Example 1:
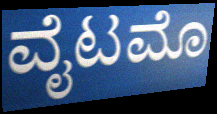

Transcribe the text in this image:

ವೈಟಮೊ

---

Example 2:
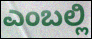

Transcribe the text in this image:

ಎಂಬಲ್ಲಿ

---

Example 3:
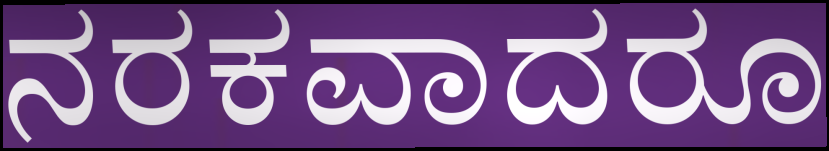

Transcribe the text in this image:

ನರಕವಾದರೂ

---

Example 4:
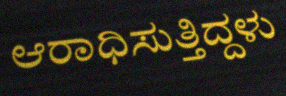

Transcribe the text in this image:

ಆರಾಧಿಸುತ್ತಿದ್ದಳು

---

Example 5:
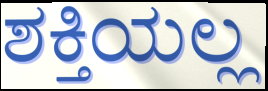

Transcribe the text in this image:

ಶಕ್ತಿಯಲ್ಲ